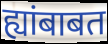
ह्यांबाबत